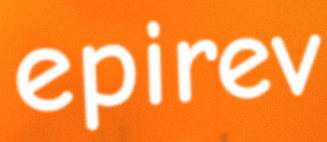
epirev